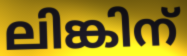
ലിങ്കിന്